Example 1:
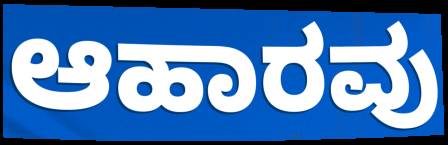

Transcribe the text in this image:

ಆಹಾರವು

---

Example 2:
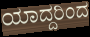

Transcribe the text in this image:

ಯಾದ್ದರಿಂದ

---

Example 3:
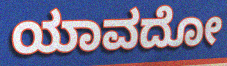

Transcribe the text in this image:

ಯಾವದೋ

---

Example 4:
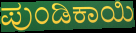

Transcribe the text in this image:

ಪುಂಡಿಕಾಯಿ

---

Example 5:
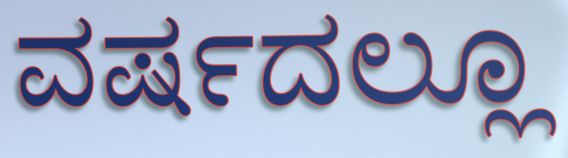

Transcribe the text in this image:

ವರ್ಷದಲ್ಲೂ